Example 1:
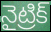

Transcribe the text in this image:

నైట్రిక్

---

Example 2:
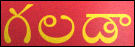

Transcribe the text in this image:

గలడా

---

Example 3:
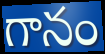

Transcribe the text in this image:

గానం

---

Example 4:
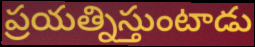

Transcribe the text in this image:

ప్రయత్నిస్తుంటాడు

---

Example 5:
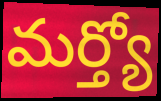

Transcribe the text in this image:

మర్త్యో